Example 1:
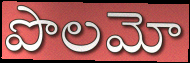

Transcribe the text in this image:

పొలమో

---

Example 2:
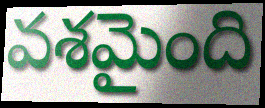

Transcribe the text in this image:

వశమైంది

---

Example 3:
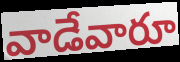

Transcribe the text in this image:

వాడేవారూ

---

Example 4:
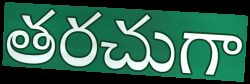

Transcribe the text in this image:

తరచుగా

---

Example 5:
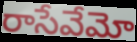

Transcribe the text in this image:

రాసేవేమో